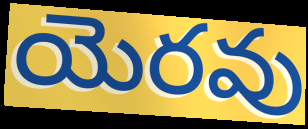
యెరవు